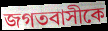
জগতবাসীকে